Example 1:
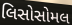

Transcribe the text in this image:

લિસોસોમલ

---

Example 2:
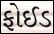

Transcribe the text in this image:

ફોઈડ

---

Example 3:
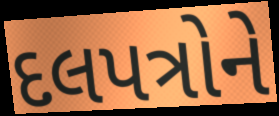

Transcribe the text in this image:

દલપત્રોને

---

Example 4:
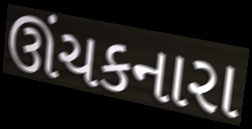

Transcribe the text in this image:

ઊંચકનારા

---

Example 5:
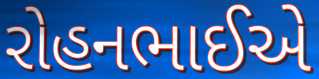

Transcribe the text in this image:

રોહનભાઈએ